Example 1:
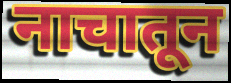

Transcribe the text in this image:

नाचातून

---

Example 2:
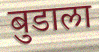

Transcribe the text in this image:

बुडाला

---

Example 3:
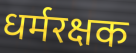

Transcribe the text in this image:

धर्मरक्षक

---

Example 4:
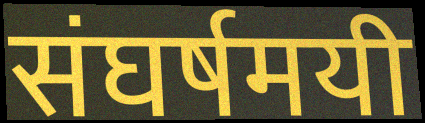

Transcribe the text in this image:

संघर्षमयी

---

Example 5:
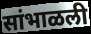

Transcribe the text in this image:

सांभाळली